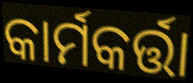
କାର୍ମକର୍ତ୍ତା